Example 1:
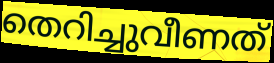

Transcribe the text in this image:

തെറിച്ചുവീണത്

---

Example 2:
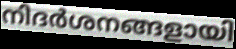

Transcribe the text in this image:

നിദർശനങ്ങളായി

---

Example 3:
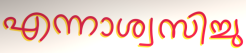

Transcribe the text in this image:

എന്നാശ്വസിച്ചു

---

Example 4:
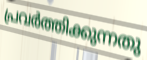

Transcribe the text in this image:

പ്രവർത്തിക്കുന്നതു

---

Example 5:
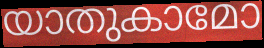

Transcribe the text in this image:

യാതുകാമോ